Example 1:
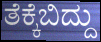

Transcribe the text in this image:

ತೆಕ್ಕೆಬಿದ್ದು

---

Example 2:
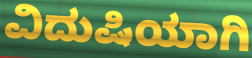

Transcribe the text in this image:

ವಿದುಷಿಯಾಗಿ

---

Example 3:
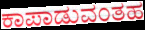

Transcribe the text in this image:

ಕಾಪಾಡುವಂತಹ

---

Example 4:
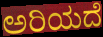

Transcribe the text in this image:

ಅರಿಯದೆ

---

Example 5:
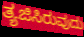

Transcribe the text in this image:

ತ್ಯಜಿಸಿರುವುದು